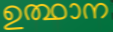
ഉത്ഥാന